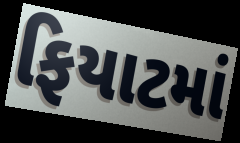
ફિયાટમાં